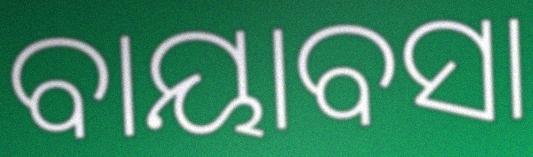
ବାୟାବସା